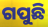
ଗପୁଛି